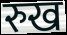
रुख